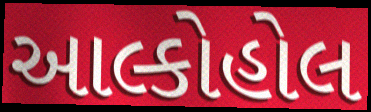
આલ્કોહોલ